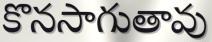
కొనసాగుతావు